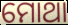
ମୋଥା